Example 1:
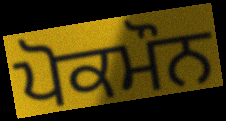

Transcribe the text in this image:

ਪੋਕਮੌਨ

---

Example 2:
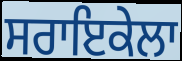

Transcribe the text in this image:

ਸਰਾਇਕੇਲਾ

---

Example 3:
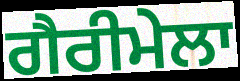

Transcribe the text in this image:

ਗੈਰੀਮੇਲਾ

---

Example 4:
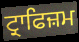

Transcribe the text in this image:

ਟ੍ਰਾਫਿਜ਼ਮ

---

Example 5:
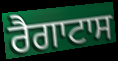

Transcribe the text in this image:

ਰੈਗਾਟਾਸ